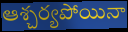
ఆశ్చర్యపోయినా